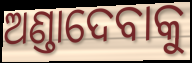
ଅଣ୍ଡାଦେବାକୁ